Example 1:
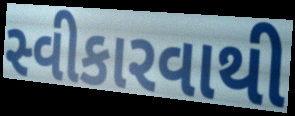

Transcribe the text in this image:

સ્વીકારવાથી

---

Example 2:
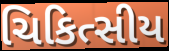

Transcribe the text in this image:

ચિકિત્સીય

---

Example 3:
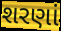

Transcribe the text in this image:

શરણાં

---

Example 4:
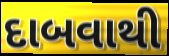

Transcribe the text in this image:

દાબવાથી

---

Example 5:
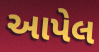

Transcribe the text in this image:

આપેલ